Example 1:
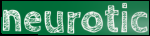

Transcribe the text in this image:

neurotic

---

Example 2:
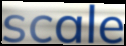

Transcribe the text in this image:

scale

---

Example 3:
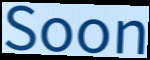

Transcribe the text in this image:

Soon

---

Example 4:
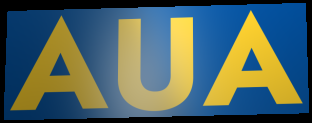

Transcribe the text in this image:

AUA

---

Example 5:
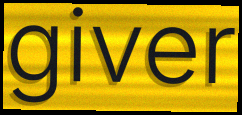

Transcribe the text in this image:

giver